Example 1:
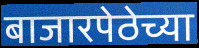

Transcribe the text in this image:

बाजारपेठेच्या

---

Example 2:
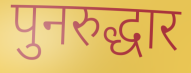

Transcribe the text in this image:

पुनरुद्धार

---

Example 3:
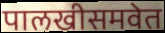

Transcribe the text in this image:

पालखीसमवेत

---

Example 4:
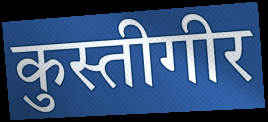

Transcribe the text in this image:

कुस्तीगीर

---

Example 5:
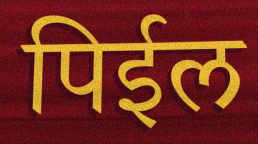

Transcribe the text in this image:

पिईल